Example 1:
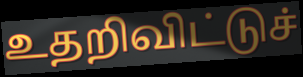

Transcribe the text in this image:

உதறிவிட்டுச்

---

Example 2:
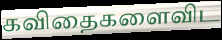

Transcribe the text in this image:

கவிதைகளைவிட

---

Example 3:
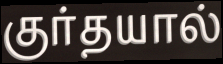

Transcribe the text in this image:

குர்தயால்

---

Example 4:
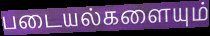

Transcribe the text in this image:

படையல்களையும்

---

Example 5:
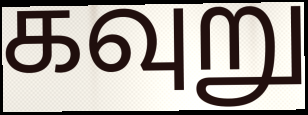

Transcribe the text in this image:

கவுறு